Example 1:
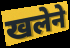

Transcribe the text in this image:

खलेने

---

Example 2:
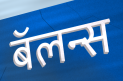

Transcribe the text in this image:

बॅलन्स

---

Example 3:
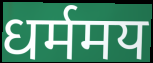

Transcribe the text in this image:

धर्ममय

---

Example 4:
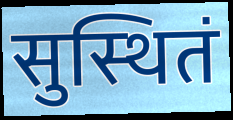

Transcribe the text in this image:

सुस्थितं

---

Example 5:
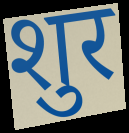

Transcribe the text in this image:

शुर